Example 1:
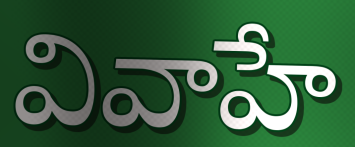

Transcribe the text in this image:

వివాహే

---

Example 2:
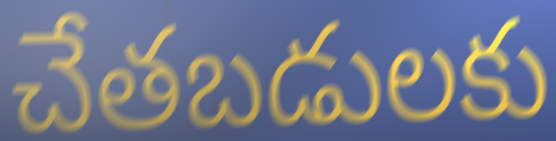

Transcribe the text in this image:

చేతబడులకు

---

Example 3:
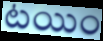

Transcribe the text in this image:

టయిం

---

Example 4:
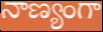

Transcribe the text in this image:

నాణ్యంగా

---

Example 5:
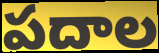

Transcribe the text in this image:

పదాల